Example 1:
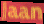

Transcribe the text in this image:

Jaan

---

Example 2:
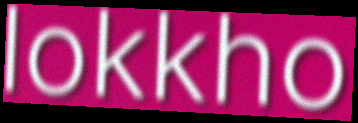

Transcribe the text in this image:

lokkho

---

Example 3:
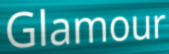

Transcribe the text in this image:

Glamour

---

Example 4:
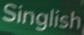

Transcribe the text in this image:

Singlish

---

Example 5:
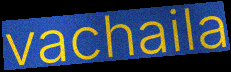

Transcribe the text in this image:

vachaila